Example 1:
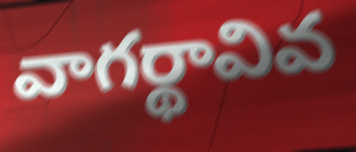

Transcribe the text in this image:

వాగర్థావివ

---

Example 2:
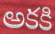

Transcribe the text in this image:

అకకి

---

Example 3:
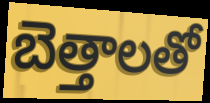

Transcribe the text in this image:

బెత్తాలతో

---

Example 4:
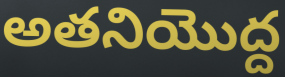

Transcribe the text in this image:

అతనియొద్ద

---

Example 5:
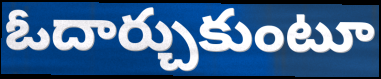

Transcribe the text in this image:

ఓదార్చుకుంటూ